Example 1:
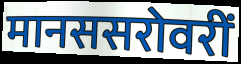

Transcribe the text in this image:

मानससरोवरीं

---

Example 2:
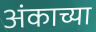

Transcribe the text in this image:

अंकाच्या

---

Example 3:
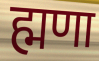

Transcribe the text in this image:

ह्मणा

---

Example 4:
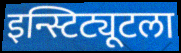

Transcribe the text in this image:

इन्स्टिट्यूटला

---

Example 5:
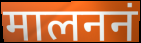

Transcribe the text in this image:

मालननं